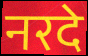
नरदे